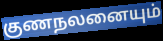
குணநலனையும்